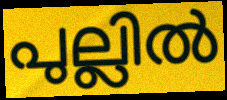
പുല്ലിൽ